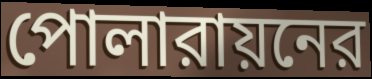
পোলারায়নের